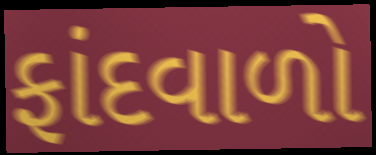
ફાંદવાળો